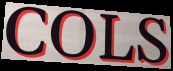
COLS